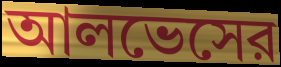
আলভেসের